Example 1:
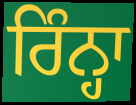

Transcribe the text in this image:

ਰਿੰਨ੍ਹਾ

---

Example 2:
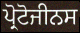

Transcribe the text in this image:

ਪ੍ਰੋਟੋਜੀਨਸ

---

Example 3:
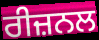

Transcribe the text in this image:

ਰੀਜ਼ਨਲ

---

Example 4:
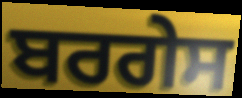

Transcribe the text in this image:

ਬਰਗੇਸ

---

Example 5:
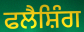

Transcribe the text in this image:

ਫਲੈਸ਼ਿੰਗ